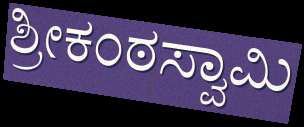
ಶ್ರೀಕಂಠಸ್ವಾಮಿ